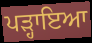
ਪੜ੍ਹਾਇਆ